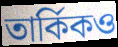
তার্কিকও